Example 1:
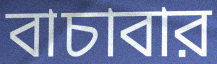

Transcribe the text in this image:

বাচাবার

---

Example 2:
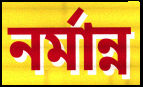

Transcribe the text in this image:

নর্মান্ন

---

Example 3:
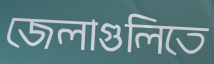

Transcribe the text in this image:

জেলাগুলিতে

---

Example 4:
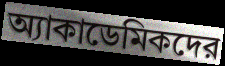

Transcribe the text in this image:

অ্যাকাডেমিকদের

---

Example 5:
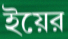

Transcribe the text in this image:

ইয়ের